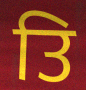
उि